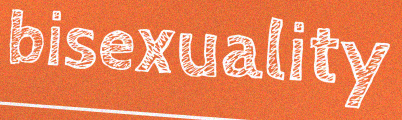
bisexuality